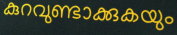
കുറവുണ്ടാക്കുകയും